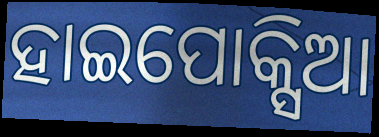
ହାଇପୋକ୍ସିଆ